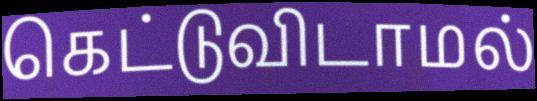
கெட்டுவிடாமல்